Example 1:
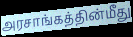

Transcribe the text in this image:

அரசாங்கத்தின்மீது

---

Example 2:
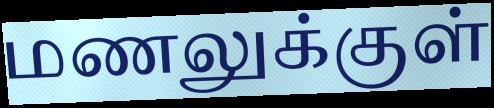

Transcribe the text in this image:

மணலுக்குள்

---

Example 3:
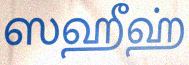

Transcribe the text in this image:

ஸஹீஹ்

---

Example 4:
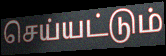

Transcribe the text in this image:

செய்யட்டும்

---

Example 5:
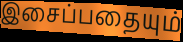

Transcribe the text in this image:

இசைப்பதையும்